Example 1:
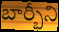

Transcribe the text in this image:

బార్బీని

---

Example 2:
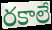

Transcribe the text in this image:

రకాలే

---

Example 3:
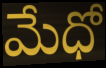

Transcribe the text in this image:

మేధో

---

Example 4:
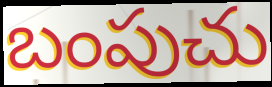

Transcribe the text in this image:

బంపుచు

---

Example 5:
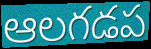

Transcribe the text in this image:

ఆలగడప